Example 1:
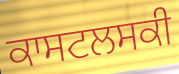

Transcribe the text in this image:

ਕਾਸਟਲਸਕੀ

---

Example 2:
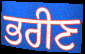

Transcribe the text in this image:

ਭਰੀਣ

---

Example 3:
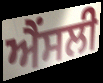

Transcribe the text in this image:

ਐਂਸਲੀ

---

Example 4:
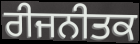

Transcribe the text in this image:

ਰੀਜਨੀਤਕ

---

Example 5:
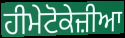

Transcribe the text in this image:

ਹੀਮੇਟੋਕੇਜ਼ੀਆ